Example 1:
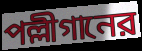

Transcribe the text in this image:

পল্লীগানের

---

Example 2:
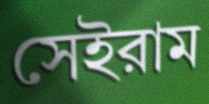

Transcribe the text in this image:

সেইরাম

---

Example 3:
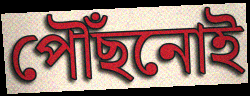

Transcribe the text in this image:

পৌঁছনোই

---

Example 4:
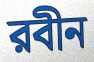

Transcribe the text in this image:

রবীন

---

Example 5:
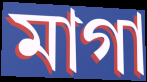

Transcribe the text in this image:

মাগা